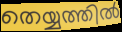
തെയ്യത്തിൽ